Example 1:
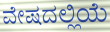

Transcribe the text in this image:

ವೇಷದಲ್ಲಿಯೆ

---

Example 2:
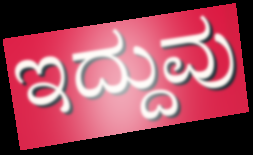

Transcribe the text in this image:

ಇದ್ದುವು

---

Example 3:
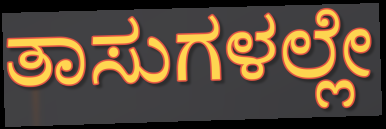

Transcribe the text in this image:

ತಾಸುಗಳಲ್ಲೇ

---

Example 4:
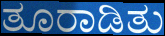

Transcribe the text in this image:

ತೂರಾಡಿತು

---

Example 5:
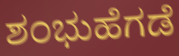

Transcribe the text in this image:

ಶಂಭುಹೆಗಡೆ